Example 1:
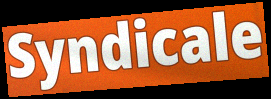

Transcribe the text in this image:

Syndicale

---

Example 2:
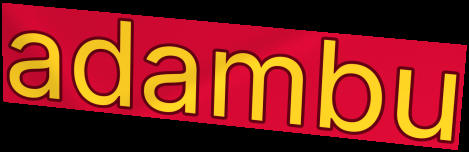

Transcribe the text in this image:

adambu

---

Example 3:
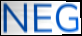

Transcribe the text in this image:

NEG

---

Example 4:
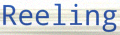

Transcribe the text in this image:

Reeling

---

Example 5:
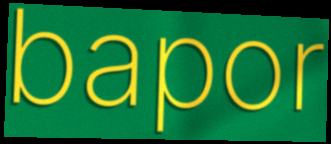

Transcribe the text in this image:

bapor